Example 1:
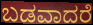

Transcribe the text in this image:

ಬಡವಾದರೆ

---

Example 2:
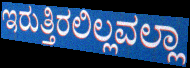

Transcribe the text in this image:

ಇರುತ್ತಿರಲಿಲ್ಲವಲ್ಲಾ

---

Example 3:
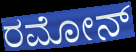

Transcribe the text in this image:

ರಮೋನ್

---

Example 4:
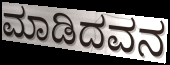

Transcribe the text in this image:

ಮಾಡಿದವನ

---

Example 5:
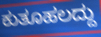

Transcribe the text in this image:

ಕುತೂಹಲದ್ದು